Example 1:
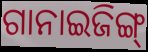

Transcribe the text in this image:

ଗାନାଇଜିଙ୍ଗ୍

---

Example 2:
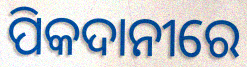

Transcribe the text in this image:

ପିକଦାନୀରେ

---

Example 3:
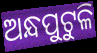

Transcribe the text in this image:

ଅନ୍ଧପୁଟୁଳି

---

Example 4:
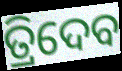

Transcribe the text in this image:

ତ୍ରିଦେବ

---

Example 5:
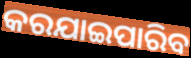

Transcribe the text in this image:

କରଯାଇପାରିବ